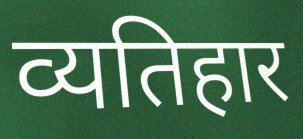
व्यतिहार